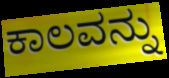
ಕಾಲವನ್ನು